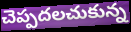
చెప్పదలచుకున్న